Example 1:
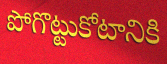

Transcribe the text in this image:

పోగొట్టుకోటానికి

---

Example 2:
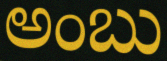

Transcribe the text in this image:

అంబు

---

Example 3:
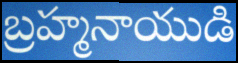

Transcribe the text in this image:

బ్రహ్మనాయుడి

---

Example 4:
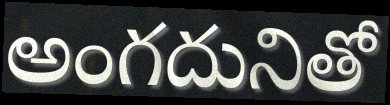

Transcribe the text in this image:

అంగదునితో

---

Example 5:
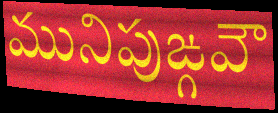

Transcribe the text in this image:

మునిపుఙ్గవౌ